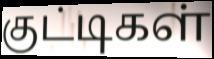
குட்டிகள்